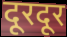
दूरदूर